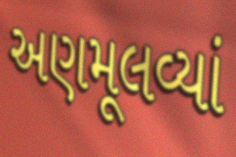
અણમૂલવ્યાં